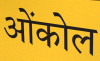
ओंकोल